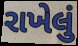
રાખેલું